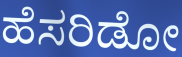
ಹೆಸರಿಡೋ